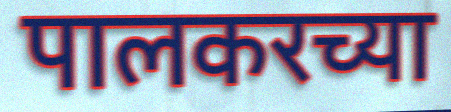
पालकरच्या